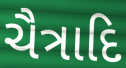
ચૈત્રાદિ